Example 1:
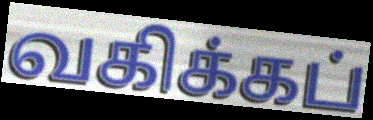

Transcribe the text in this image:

வகிக்கப்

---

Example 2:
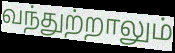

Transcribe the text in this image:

வந்துற்றாலும்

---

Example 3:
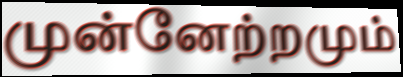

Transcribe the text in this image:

முன்னேற்றமும்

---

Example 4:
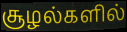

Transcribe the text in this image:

சூழல்களில்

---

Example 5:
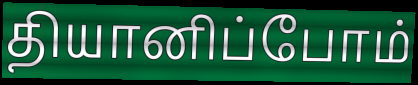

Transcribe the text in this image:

தியானிப்போம்